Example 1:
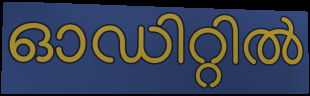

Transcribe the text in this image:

ഓഡിറ്റിൽ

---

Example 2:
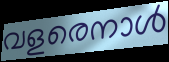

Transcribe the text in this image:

വളരെനാൾ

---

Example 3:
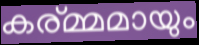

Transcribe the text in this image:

കര്മ്മമായും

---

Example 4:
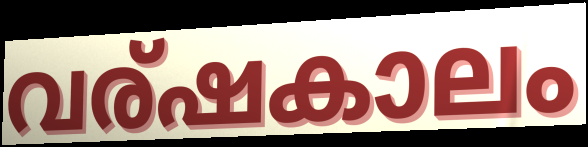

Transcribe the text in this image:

വര്ഷകാലം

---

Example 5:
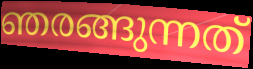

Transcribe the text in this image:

ഞരങ്ങുന്നത്